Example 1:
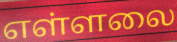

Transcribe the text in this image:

எள்ளலை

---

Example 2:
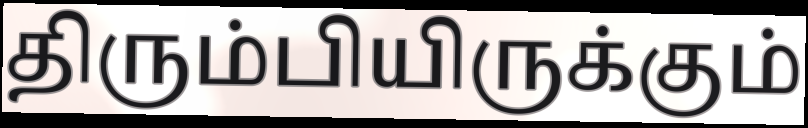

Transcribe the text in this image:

திரும்பியிருக்கும்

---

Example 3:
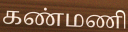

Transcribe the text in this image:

கண்மணி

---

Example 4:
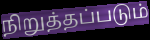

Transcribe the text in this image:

நிறுத்தப்படும்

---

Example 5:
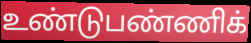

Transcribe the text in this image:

உண்டுபண்ணிக்